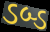
ડબ્ડ